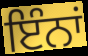
ਇੰਨਾਂ